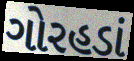
ગોરહડાં